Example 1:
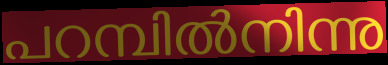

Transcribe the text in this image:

പറമ്പിൽനിന്നു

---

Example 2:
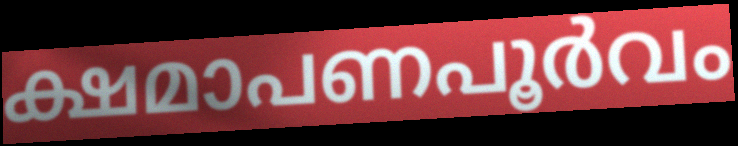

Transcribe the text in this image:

ക്ഷമാപണപൂർവം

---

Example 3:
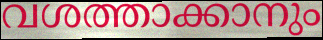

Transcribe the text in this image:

വശത്താക്കാനും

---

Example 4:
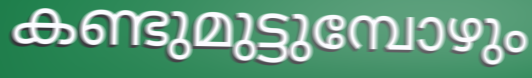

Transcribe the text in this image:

കണ്ടുമുട്ടുമ്പോഴും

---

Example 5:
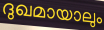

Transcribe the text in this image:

ദുഖമായാലും